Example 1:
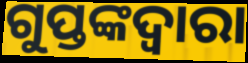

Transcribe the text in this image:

ଗୁପ୍ତଙ୍କଦ୍ୱାରା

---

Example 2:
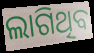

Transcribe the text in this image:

ଲାଗିଥିବ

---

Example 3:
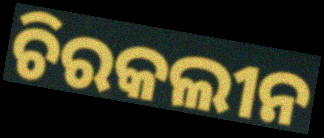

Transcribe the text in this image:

ଚିରକଲୀନ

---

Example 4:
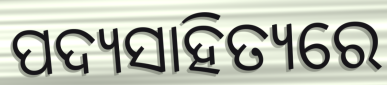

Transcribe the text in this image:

ପଦ୍ୟସାହିତ୍ୟରେ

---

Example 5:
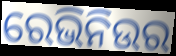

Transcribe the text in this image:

ରେଭିନିଉର